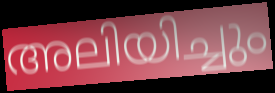
അലിയിച്ചും